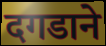
दगडाने